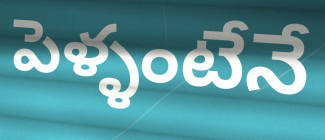
పెళ్ళంటేనే